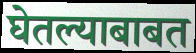
घेतल्याबाबत